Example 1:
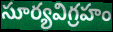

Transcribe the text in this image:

సూర్యవిగ్రహం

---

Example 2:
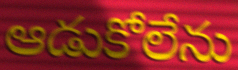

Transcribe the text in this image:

ఆడుకోలేను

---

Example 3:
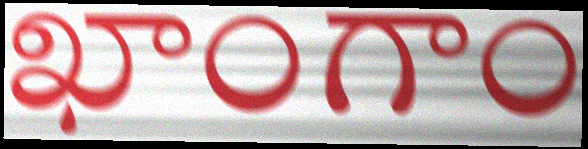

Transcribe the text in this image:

ఖాంగాం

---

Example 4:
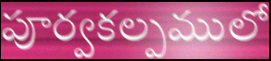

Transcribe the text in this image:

పూర్వకల్పములో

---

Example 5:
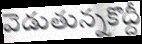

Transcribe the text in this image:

వెడుతున్నకొద్దీ